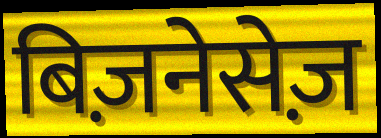
बिज़नेसेज़